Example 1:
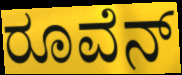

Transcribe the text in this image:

ರೂವೆನ್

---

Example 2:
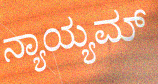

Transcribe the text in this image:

ನ್ಯಾಯ್ಯಮ್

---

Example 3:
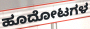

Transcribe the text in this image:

ಹೂದೋಟಗಳ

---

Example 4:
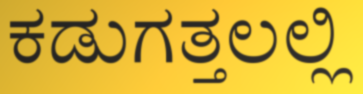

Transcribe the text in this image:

ಕಡುಗತ್ತಲಲ್ಲಿ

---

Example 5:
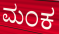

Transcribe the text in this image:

ಮಂಕ